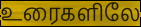
உரைகளிலே